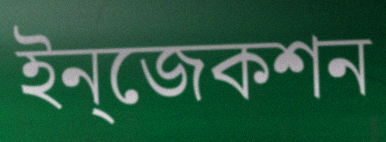
ইন্‌জেকশন